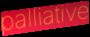
palliative